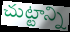
చుట్టాన్ని